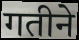
गतीने